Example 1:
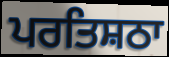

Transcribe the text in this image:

ਪਰਤਿਸ਼ਠਾ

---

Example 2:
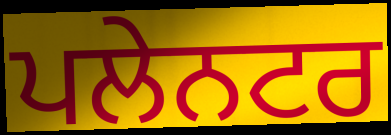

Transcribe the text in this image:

ਪਲੇਨਟਰ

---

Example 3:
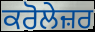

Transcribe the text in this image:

ਕਰੋਲੇਜ਼ਰ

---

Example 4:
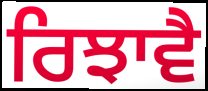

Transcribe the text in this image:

ਰਿਝਾਵੈ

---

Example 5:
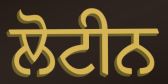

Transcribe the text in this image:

ਲੋਟੀਨ